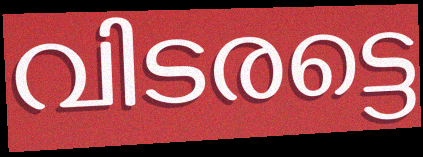
വിടരട്ടെ